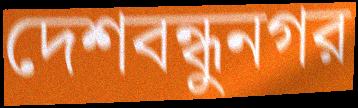
দেশবন্ধুনগর